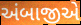
અંબાજીએ